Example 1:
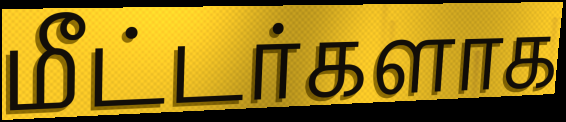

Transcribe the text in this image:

மீட்டர்களாக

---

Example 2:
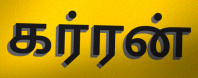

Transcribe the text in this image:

கர்ரன்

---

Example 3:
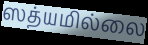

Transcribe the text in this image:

ஸத்யமில்லை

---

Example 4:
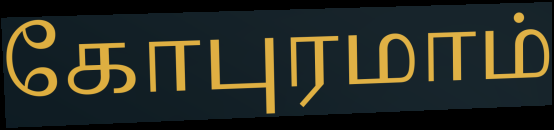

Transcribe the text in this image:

கோபுரமாம்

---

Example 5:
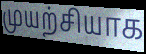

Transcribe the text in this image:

முயற்சியாக